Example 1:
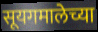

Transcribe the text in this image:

सूयगमालेच्या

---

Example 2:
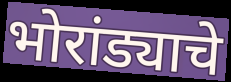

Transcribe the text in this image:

भोरांड्याचे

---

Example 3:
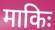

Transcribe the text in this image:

माकिः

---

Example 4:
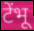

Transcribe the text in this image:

टेंभू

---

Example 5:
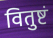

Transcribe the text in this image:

वितुष्टं